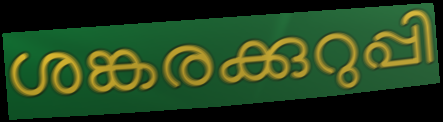
ശങ്കരക്കുറുപ്പി